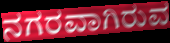
ನಗರವಾಗಿರುವ